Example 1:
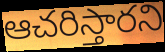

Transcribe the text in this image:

ఆచరిస్తారని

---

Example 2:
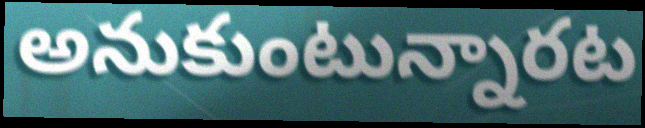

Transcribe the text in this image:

అనుకుంటున్నారట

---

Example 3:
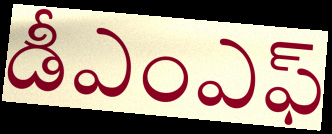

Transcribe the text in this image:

డీఎంఎఫ్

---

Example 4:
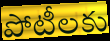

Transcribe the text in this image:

పోటీలకు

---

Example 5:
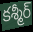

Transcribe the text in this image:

కశ్మీర్